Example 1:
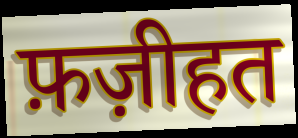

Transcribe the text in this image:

फ़ज़ीहत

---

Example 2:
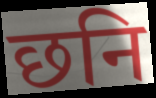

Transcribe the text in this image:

छनि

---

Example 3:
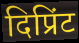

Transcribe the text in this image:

दिप्रिंट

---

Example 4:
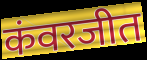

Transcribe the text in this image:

कंवरजीत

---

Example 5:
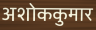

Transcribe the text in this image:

अशोककुमार